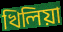
খিলিয়া